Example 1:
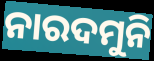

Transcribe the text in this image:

ନାରଦମୁନି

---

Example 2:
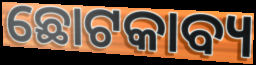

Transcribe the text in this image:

ଛୋଟକାବ୍ୟ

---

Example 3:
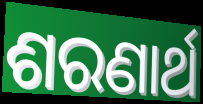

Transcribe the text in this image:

ଶରଣାର୍ଥ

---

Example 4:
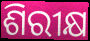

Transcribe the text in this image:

ଶିରୀକ୍ଷ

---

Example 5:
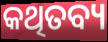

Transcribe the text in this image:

କଥିତବ୍ୟ